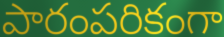
పారంపరికంగా